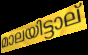
മാലയിട്ടാല്